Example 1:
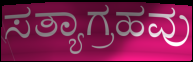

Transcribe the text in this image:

ಸತ್ಯಾಗ್ರಹವು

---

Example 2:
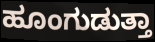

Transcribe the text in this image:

ಹೂಂಗುಡುತ್ತಾ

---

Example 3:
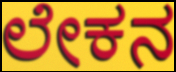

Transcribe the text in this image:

ಲೇಕನ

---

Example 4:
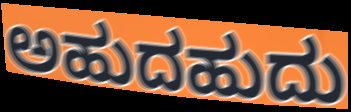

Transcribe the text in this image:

ಅಹುದಹುದು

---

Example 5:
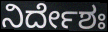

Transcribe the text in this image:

ನಿರ್ದೇಶಃ